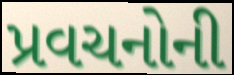
પ્રવચનોની